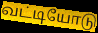
வட்டியோடு